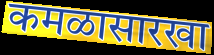
कमळासारखा